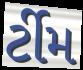
ર્ટીમ